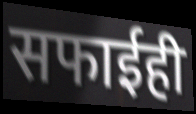
सफाईही